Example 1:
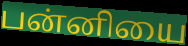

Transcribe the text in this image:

பன்னியை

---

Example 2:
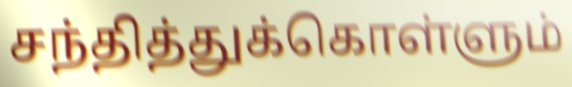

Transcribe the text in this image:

சந்தித்துக்கொள்ளும்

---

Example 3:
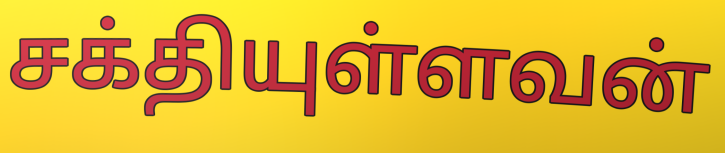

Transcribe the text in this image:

சக்தியுள்ளவன்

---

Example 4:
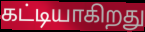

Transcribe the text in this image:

கட்டியாகிறது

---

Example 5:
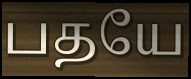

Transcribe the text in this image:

பதயே